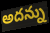
అదన్ను